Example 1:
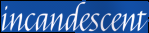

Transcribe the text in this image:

incandescent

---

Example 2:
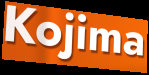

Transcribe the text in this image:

Kojima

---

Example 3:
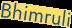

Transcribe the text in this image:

Bhimruli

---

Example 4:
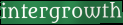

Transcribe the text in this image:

intergrowth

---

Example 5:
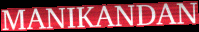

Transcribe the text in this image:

MANIKANDAN